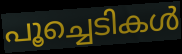
പൂച്ചെടികൾ